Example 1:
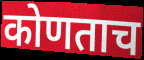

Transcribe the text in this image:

कोणताच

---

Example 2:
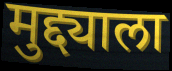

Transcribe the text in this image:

मुद्द्याला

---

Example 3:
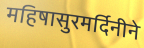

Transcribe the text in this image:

महिषासुरमर्दिनीने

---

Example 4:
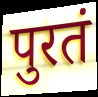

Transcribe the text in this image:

पुरतं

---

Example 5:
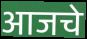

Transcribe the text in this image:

आजचे